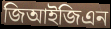
জিআইজিএন